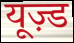
यूज़्ड